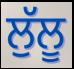
ਲੁੱਲੂ